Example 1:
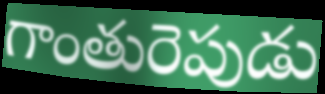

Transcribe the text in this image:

గాంతురెపుడు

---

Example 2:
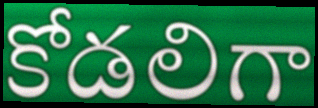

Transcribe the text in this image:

కోడలిగా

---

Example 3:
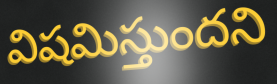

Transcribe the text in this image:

విషమిస్తుందని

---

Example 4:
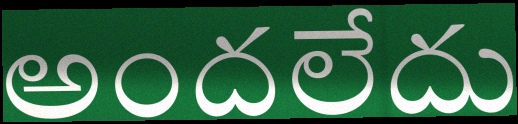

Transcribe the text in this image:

అందలేదు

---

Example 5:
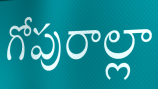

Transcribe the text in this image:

గోపురాల్లా